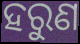
ହରୁଣ